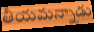
తీయమన్నాడు